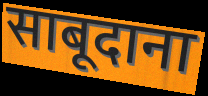
साबूदाना